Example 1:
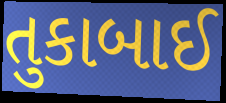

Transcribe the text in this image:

તુકાબાઈ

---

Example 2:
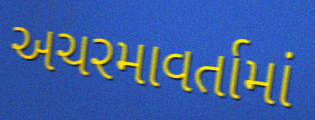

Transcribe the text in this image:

અચરમાવર્તામાં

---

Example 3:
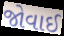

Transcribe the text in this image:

જોવાઈ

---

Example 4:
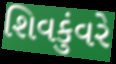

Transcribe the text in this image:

શિવકુંવરે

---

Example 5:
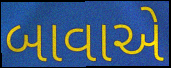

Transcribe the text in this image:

બાવાએ